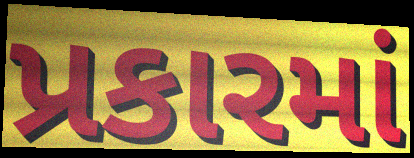
પ્રકારમાં